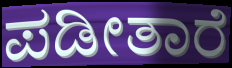
ಪಡೀತಾರೆ